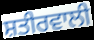
ਸ਼ਤੀਰਵਾਲੀ